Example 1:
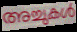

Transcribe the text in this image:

അച്ചുകൾ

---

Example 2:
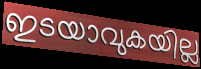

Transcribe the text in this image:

ഇടയാവുകയില്ല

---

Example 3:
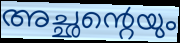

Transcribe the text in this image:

അച്ഛന്റെയും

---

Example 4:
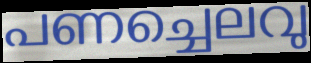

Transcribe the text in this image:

പണച്ചെലവു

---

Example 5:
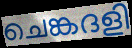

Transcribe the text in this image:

ചെങ്കദളി